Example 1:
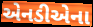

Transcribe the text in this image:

એનડીએના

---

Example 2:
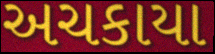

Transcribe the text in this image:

અચકાયા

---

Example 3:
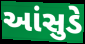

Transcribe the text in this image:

આંસુડે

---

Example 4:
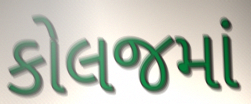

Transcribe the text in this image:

કોલજમાં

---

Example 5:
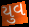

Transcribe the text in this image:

યુવ